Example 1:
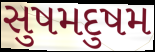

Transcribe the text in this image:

સુષમદુષમ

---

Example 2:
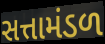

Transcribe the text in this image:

સત્તામંડળ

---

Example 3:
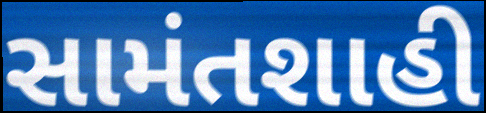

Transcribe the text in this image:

સામંતશાહી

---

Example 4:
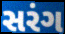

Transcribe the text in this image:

સરંગ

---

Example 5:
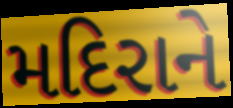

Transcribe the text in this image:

મદિરાને